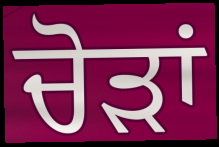
ਚੋੜਾਂ